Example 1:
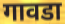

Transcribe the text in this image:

गावडा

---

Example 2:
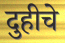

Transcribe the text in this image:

दुहीचे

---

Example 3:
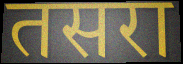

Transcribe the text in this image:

तसरा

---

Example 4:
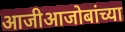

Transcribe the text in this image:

आजीआजोबांच्या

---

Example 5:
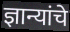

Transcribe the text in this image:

ज्ञान्यांचे